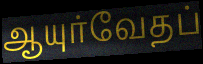
ஆயுர்வேதப்